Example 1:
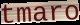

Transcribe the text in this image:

tmaro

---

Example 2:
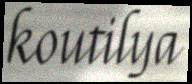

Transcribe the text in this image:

koutilya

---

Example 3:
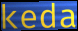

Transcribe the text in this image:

keda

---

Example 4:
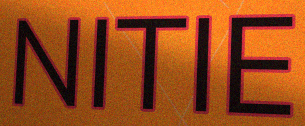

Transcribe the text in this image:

NITIE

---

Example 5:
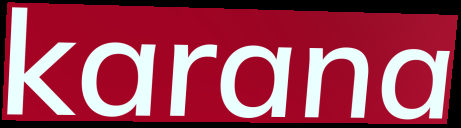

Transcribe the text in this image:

karana